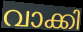
വാക്കി